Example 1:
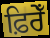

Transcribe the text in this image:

ਫ਼ਿਰੇਁ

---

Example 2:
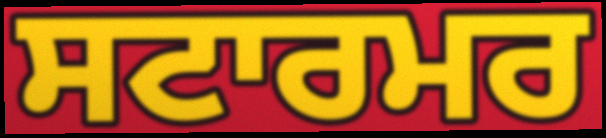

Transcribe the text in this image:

ਸਟਾਰਮਰ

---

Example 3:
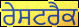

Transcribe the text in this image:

ਰੇਸਟਰੈਕ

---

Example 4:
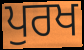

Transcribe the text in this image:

ਪੁਰਖ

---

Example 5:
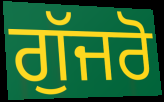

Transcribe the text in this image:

ਗੁੱਜਰੋ